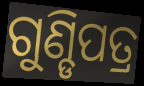
ଗୁଣ୍ଡିପତ୍ର